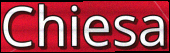
Chiesa